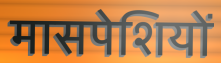
मासपेशियों